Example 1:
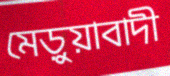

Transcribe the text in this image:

মেড়ুয়াবাদী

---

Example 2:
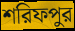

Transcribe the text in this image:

শরিফপুর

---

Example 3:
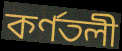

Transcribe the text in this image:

কর্ণতলী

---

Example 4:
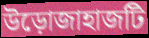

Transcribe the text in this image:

উড়োজাহাজটি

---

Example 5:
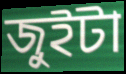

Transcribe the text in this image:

জুইটা